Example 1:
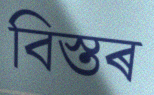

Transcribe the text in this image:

বিস্তৰ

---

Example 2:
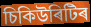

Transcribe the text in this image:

চিকিউৰিটিৰ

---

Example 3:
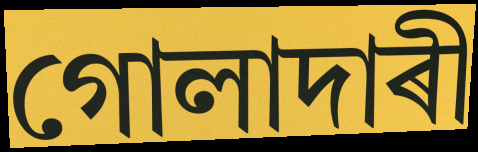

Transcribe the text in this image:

গোলাদাৰী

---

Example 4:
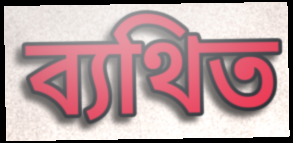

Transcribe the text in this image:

ব্যথিত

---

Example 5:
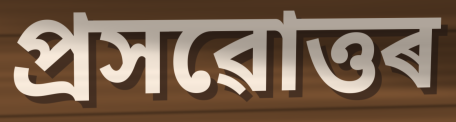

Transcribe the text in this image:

প্ৰসৱোত্তৰ